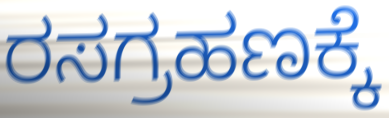
ರಸಗ್ರಹಣಕ್ಕೆ